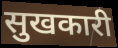
सुखकारी